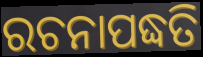
ରଚନାପଦ୍ଧତି